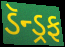
ડૅન્ડ્રફ